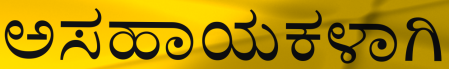
ಅಸಹಾಯಕಳಾಗಿ